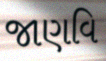
જાણવિ